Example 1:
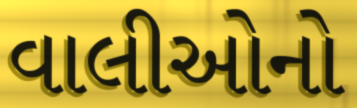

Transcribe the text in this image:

વાલીઓનો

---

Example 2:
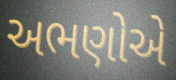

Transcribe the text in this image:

અભણોએ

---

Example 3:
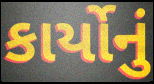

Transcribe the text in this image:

કાર્યોનું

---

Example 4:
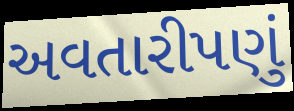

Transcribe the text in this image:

અવતારીપણું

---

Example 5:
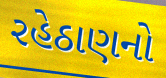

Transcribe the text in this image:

રહેઠાણનો